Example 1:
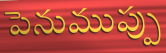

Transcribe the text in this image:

పెనుముప్పు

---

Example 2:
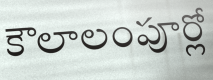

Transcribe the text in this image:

కౌలాలంపూర్లో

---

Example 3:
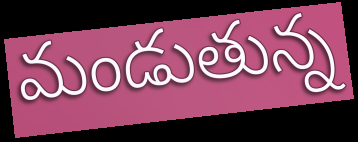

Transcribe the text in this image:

మండుతున్న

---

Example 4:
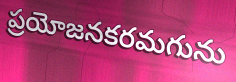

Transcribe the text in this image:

ప్రయోజనకరమగును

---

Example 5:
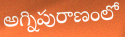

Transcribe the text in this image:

అగ్నిపురాణంలో